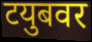
टयुबवर